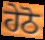
ਹੇਠੋ